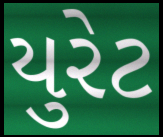
યુરેટ